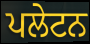
ਪਲੇਟਨ